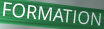
FORMATION